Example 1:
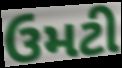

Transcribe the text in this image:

ઉમટી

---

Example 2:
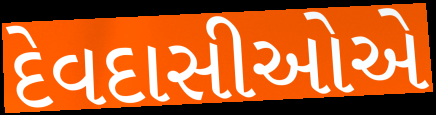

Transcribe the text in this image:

દેવદાસીઓએ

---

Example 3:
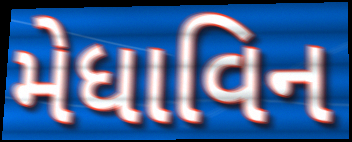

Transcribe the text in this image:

મેધાવિન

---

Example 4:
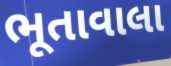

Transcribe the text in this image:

ભૂતાવાલા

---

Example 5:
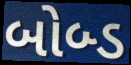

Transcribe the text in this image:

બોબ્ડ